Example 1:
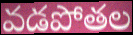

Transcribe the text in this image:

వడపోతల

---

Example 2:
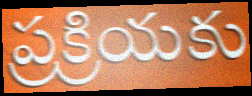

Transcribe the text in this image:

ప్రక్రియకు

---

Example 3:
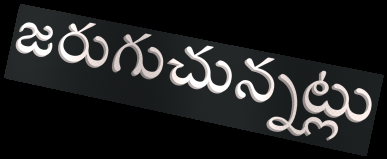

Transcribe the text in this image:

జరుగుచున్నట్లు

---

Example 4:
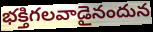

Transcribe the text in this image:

భక్తిగలవాడైనందున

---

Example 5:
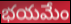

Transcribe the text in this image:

భయమేం